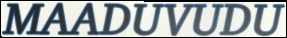
MAADUVUDU